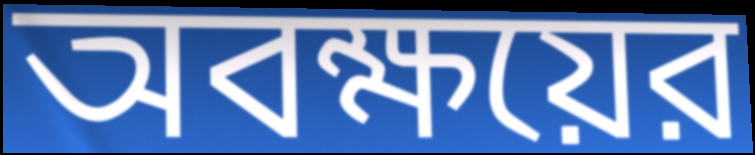
অবক্ষয়ের